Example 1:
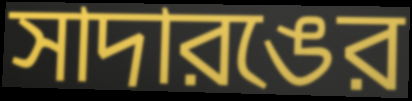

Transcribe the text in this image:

সাদারঙের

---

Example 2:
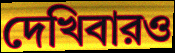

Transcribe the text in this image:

দেখিবারও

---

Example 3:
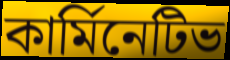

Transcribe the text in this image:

কার্মিনেটিভ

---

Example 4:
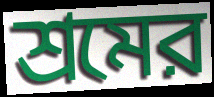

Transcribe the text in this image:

শ্রমের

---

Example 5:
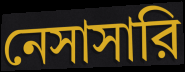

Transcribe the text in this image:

নেসাসারি